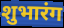
शुभारंग